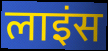
लाइंस